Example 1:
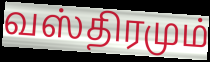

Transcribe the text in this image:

வஸ்திரமும்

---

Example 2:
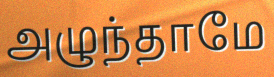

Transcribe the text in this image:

அழுந்தாமே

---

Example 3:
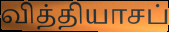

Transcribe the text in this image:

வித்தியாசப்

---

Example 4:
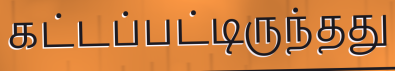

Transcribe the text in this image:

கட்டப்பட்டிருந்தது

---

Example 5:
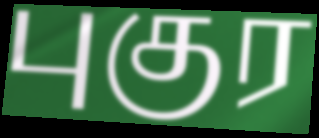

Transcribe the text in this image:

புகுர